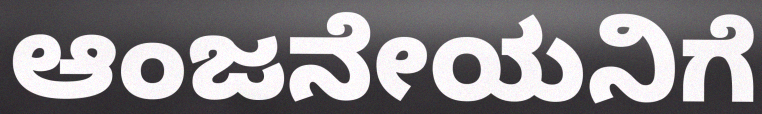
ಆಂಜನೇಯನಿಗೆ